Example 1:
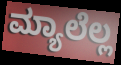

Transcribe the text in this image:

ಮ್ಯಾಲೆಲ್ಲ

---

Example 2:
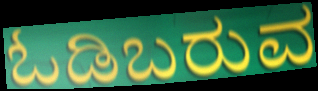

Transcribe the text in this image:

ಓಡಿಬರುವ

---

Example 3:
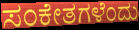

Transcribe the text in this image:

ಸಂಕೇತಗಳೆಂದು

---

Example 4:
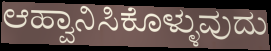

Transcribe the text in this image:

ಆಹ್ವಾನಿಸಿಕೊಳ್ಳುವುದು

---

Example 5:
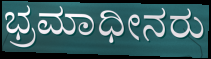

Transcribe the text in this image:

ಭ್ರಮಾಧೀನರು